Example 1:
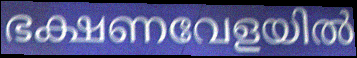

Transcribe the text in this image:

ഭക്ഷണവേളയിൽ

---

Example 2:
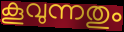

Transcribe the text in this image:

കൂവുന്നതും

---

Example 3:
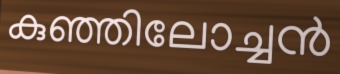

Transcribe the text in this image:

കുഞ്ഞിലോച്ചൻ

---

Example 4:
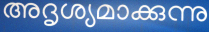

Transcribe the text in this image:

അദൃശ്യമാക്കുന്നു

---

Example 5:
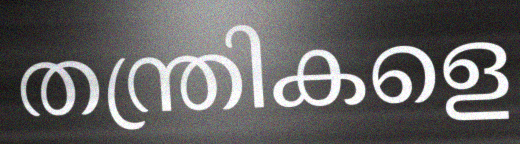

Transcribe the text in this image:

തന്ത്രികളെ